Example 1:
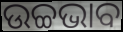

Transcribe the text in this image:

ଉଚ୍ଚଭାବ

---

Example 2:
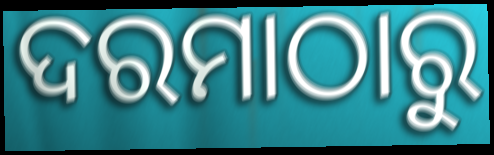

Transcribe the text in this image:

ଦରମାଠାରୁ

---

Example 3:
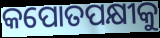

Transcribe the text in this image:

କପୋତପକ୍ଷୀକୁ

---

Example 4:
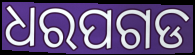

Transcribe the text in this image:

ଧରପଗଡ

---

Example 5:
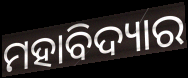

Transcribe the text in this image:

ମହାବିଦ୍ୟାର